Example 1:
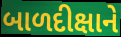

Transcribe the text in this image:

બાળદીક્ષાને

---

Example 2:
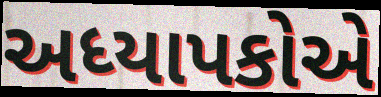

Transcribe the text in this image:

અધ્યાપકોએ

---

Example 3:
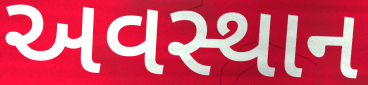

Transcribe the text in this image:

અવસ્થાન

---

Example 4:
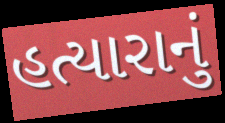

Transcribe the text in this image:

હત્યારાનું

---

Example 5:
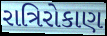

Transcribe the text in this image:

રાત્રિરોકાણ